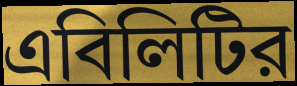
এবিলিটির